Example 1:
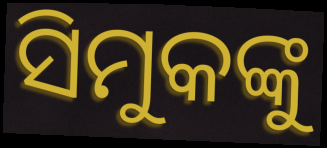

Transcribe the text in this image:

ସିମୁକଙ୍କୁ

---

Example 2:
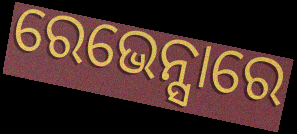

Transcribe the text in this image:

ରେଭେନ୍ସାରେ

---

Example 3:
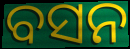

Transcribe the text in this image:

ବସନ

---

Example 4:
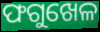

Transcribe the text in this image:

ଫଗୁଖେଳ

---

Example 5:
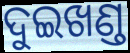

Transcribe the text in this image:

ଦୁଇଖଣ୍ଡ